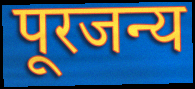
पूरजन्य